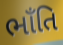
ભાઁતિ